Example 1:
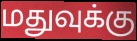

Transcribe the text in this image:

மதுவுக்கு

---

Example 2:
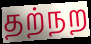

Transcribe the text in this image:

தற்நற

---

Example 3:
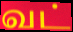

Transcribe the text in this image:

வட்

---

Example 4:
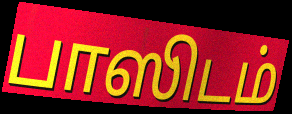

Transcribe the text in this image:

பாஸிடம்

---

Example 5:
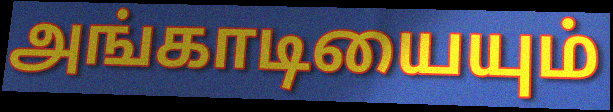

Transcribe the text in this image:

அங்காடியையும்